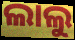
ଲାଲୁ